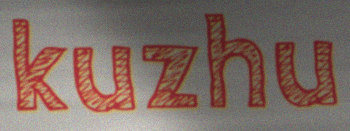
kuzhu